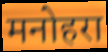
मनोहरा